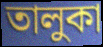
তালুকা